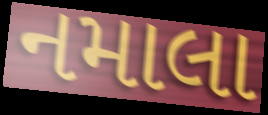
નમાલા